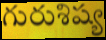
గురుశిష్య